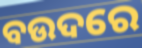
ବଉଦରେ